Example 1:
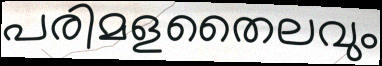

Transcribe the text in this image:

പരിമളതൈലവും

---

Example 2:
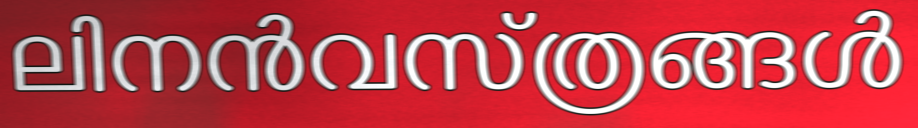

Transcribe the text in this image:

ലിനൻവസ്‌ത്രങ്ങൾ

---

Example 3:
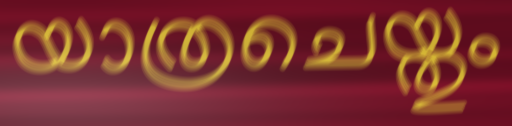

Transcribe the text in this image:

യാത്രചെയ്തും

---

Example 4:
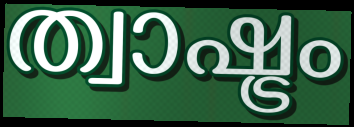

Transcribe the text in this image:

ത്വാഷ്ട്രം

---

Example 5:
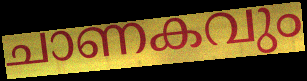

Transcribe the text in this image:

ചാണകവും